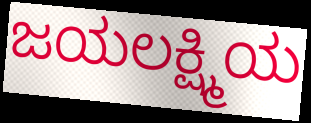
ಜಯಲಕ್ಷ್ಮಿಯ